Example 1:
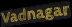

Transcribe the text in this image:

Vadnagar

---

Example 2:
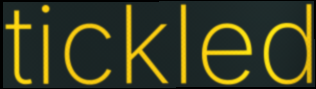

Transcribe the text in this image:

tickled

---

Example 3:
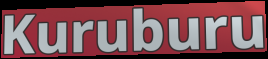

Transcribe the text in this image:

Kuruburu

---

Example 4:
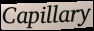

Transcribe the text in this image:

Capillary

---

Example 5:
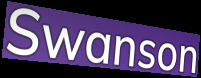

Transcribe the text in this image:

Swanson